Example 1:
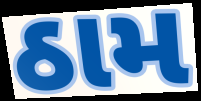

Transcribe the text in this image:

ઠામ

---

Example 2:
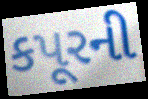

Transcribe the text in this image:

કપૂરની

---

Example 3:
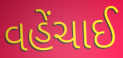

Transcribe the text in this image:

વહેંચાઈ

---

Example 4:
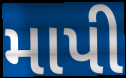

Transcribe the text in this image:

માપી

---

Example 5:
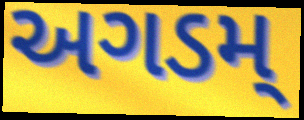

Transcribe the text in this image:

અગડમ્